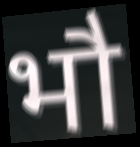
भौ